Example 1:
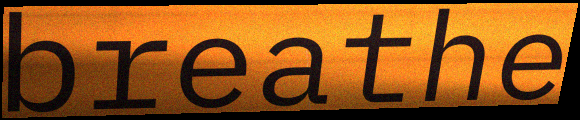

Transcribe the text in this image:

breathe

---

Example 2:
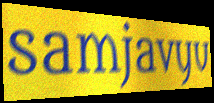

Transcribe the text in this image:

samjavyu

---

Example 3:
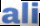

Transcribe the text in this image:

ali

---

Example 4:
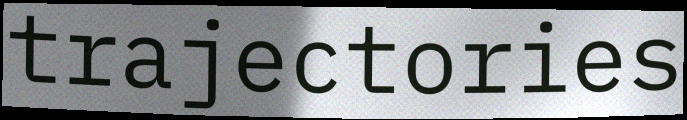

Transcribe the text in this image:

trajectories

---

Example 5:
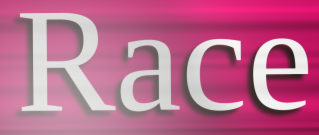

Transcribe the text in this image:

Race